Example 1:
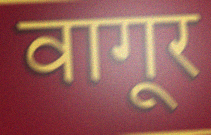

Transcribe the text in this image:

वागूर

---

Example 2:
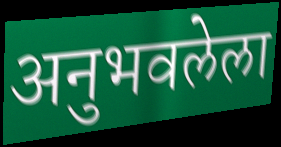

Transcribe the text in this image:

अनुभवलेला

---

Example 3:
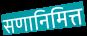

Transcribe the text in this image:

सणानिमित्त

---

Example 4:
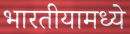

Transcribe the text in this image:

भारतीयामध्ये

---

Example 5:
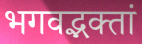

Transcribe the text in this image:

भगवद्भक्तां